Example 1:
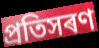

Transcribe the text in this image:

প্ৰতিসৰণ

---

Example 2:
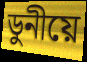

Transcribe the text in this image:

ডুনীয়ে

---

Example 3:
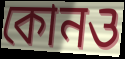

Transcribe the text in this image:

কোনও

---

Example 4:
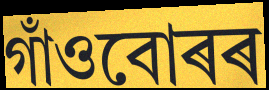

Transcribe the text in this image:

গাঁওবোৰৰ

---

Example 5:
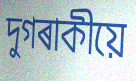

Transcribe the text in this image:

দুগৰাকীয়ে